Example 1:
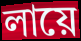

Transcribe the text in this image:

লায়ে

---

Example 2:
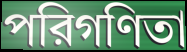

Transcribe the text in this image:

পরিগণিতা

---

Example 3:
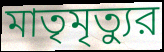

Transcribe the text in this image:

মাতৃমৃত্যুর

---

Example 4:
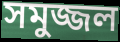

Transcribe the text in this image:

সমুজ্জল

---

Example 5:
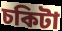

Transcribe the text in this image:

চকিটা